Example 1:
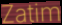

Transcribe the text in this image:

Zatim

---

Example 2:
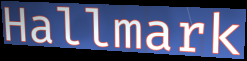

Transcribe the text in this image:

Hallmark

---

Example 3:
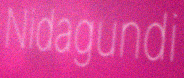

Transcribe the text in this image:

Nidagundi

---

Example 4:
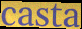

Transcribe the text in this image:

casta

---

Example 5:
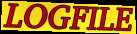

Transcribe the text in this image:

LOGFILE